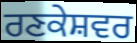
ਰਣਕੇਸ਼ਵਰ